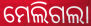
ମେଲିଗଲା